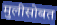
मुलीसोबत